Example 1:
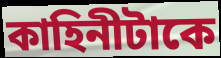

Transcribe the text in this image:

কাহিনীটাকে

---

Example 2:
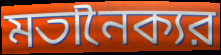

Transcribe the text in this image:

মতানৈক্যর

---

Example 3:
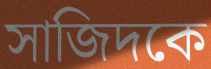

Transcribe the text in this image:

সাজিদকে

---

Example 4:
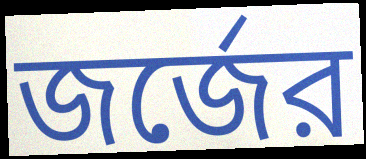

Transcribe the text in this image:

জর্জের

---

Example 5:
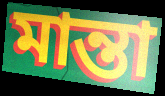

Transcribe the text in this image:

মান্তা